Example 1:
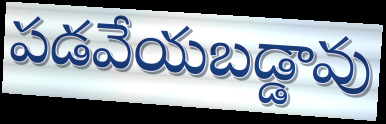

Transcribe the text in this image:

పడవేయబడ్డావు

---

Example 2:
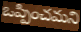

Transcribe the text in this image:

ఒప్పించమని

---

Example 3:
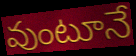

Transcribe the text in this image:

వుంటూనే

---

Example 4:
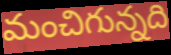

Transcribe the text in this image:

మంచిగున్నది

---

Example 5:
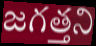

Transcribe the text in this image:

జగత్తని